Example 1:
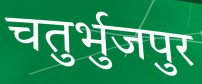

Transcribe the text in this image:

चतुर्भुजपुर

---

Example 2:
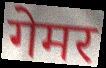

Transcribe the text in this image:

गेमर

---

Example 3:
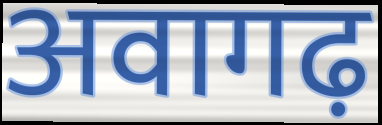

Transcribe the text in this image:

अवागढ़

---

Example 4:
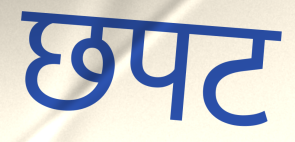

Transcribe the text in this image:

छपट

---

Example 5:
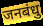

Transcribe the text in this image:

जनबंधु